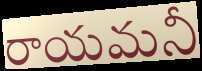
రాయమనీ